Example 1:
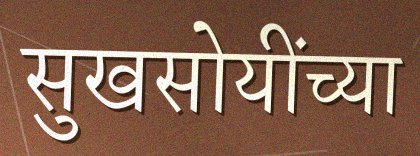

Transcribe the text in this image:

सुखसोयींच्या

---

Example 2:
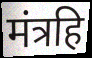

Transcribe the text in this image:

मंत्रहि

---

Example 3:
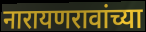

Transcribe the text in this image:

नारायणरावांच्या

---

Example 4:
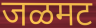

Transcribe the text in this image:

जळमट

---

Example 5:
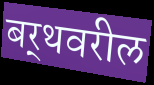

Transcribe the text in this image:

बर्थवरील